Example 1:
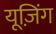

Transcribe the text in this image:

यूज़िंग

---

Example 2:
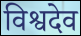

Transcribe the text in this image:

विश्वदेव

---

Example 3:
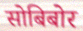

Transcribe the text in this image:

सोबिबोर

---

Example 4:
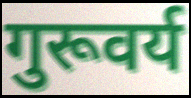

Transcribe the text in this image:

गुरूवर्य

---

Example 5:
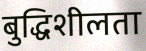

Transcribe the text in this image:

बुद्धिशीलता